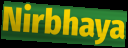
Nirbhaya